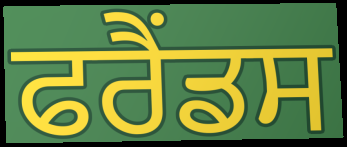
ਫਰੈਂਡਸ